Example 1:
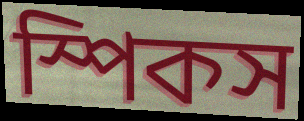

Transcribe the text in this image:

স্পিকস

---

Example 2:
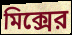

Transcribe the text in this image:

মিক্সের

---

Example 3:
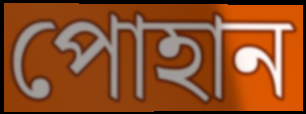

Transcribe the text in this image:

পোহান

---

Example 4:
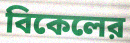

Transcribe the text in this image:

বিকেলের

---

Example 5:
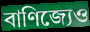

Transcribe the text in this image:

বাণিজ্যেও